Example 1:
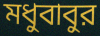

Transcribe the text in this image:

মধুবাবুর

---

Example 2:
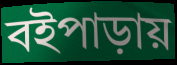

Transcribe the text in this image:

বইপাড়ায়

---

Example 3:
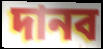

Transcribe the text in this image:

দানব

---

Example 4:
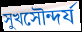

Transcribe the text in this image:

সুখসৌন্দর্য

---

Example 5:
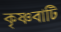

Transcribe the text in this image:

কৃষ্ণবাটি